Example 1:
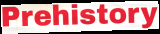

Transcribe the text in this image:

Prehistory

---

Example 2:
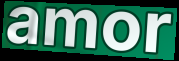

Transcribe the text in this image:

amor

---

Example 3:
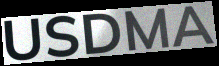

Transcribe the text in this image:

USDMA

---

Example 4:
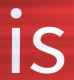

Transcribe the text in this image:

is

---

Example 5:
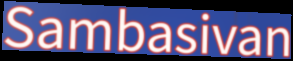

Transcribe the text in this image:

Sambasivan